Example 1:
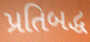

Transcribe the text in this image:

પ્રતિબદ્ધ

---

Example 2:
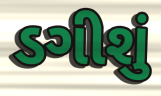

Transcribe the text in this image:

ડગીશું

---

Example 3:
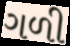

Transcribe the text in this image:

ગળી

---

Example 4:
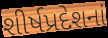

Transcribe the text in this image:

શીર્ષપ્રદેશનાં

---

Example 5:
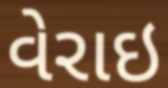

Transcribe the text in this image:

વેરાઇ